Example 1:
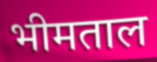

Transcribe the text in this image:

भीमताल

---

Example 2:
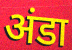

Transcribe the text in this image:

अंडा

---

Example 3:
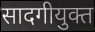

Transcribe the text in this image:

सादगीयुक्त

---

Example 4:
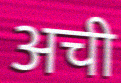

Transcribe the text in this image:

अची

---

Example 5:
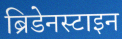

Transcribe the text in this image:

ब्रिडेनस्टाइन